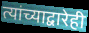
त्यांच्याद्वारेही